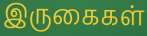
இருகைகள்